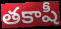
తకాషీ